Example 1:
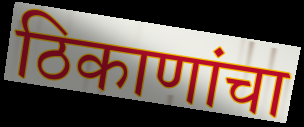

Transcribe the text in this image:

ठिकाणांचा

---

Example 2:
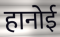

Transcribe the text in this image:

हानोई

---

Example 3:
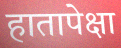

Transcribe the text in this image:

हातापेक्षा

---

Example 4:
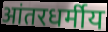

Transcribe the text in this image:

आंतरधर्मीय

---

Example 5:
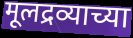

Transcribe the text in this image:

मूलद्रव्याच्या